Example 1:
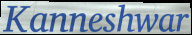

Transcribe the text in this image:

Kanneshwar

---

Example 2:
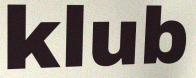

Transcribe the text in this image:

klub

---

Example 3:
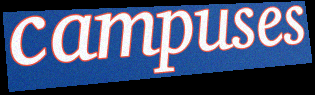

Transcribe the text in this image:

campuses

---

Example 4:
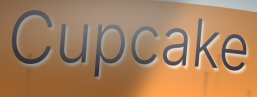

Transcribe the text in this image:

Cupcake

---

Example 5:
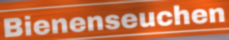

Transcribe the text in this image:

Bienenseuchen